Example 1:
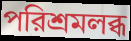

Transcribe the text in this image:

পরিশ্রমলব্ধ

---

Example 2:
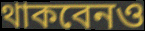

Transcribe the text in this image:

থাকবেনও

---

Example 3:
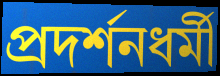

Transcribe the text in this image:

প্রদর্শনধর্মী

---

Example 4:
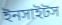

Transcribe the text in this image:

ইনসাইটস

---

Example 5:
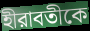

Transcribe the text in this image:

হীরাবতীকে